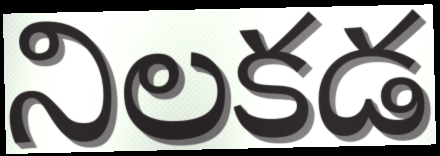
నిలకడ